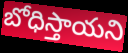
బోధిస్తాయని